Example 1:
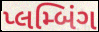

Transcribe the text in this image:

પ્લમ્બિંગ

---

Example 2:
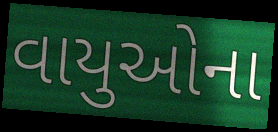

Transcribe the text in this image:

વાયુઓના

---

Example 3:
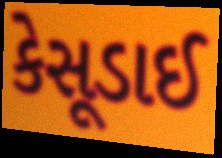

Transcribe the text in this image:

કેસૂડાઈ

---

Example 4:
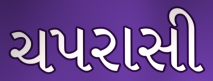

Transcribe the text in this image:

ચપરાસી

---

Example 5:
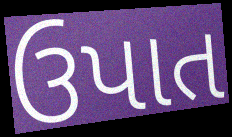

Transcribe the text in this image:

ઉપાત